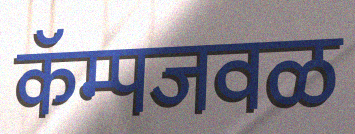
कॅम्पजवळ